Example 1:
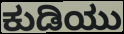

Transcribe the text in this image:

ಕುಡಿಯು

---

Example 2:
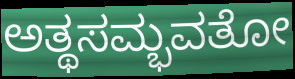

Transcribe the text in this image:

ಅತ್ಥಸಮ್ಭವತೋ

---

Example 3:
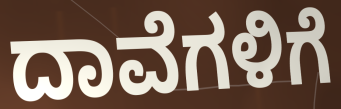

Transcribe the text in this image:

ದಾವೆಗಳಿಗೆ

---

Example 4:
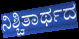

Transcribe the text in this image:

ನಿಶ್ಚಿತಾರ್ಥದ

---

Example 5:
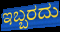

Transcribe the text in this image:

ಇಬ್ಬರದು